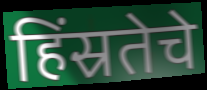
हिंस्रतेचे